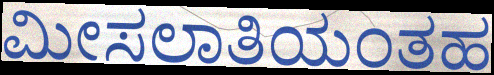
ಮೀಸಲಾತಿಯಂತಹ